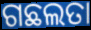
ଗଛଲତା